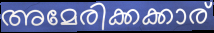
അമേരിക്കക്കാര്